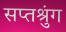
सप्तश्रुंग